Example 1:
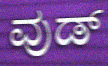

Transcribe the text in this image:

ವುಡ್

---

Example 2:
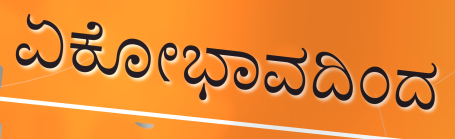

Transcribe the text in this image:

ಏಕೋಭಾವದಿಂದ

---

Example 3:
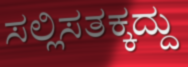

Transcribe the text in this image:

ಸಲ್ಲಿಸತಕ್ಕದ್ದು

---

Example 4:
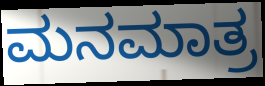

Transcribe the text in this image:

ಮನಮಾತ್ರ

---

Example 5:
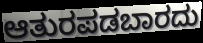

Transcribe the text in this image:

ಆತುರಪಡಬಾರದು